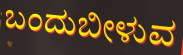
ಬಂದುಬೀಳುವ